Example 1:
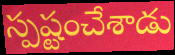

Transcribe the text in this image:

స్పష్టంచేశాడు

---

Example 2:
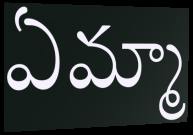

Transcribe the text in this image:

ఏమ్మా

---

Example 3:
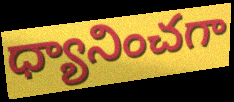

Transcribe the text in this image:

ధ్యానించగా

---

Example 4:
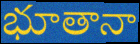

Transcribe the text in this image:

భూతానా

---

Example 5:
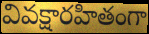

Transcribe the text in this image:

వివక్షారహితంగా